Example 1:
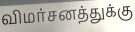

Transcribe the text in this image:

விமர்சனத்துக்கு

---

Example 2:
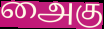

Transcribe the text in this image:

அைகு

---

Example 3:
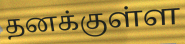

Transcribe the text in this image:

தனக்குள்ள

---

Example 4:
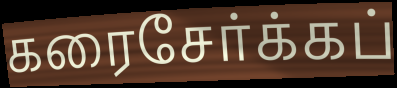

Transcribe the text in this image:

கரைசேர்க்கப்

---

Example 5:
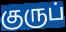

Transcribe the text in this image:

குருப்